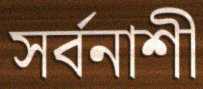
সৰ্বনাশী